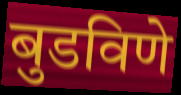
बुडविणे